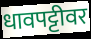
धावपट्टीवर